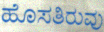
ಹೊಸತಿರುವು